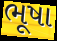
ભૂષા